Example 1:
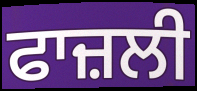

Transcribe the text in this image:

ਫਾਜ਼ਲੀ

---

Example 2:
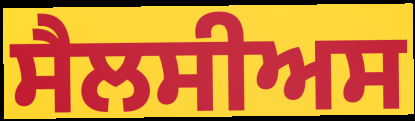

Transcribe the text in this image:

ਸੈਲਸੀਅਸ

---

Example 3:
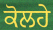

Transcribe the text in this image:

ਕੋਲਹੇ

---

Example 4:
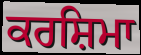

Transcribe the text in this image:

ਕਰਸ਼ਿਮਾ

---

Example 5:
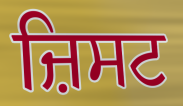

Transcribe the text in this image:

ਜ਼ਿਸਟ